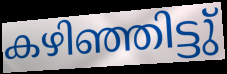
കഴിഞ്ഞിട്ടു്